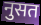
नुसत